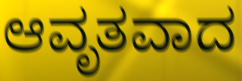
ಆವೃತವಾದ